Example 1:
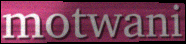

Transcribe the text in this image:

motwani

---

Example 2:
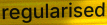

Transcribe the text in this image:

regularised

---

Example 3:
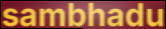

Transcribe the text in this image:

sambhadu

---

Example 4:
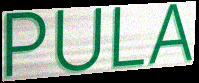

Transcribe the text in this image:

PULA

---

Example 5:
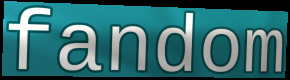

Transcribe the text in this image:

fandom